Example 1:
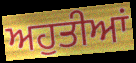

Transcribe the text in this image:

ਅਹੁਤੀਆਂ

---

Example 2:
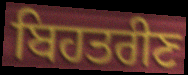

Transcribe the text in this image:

ਬਿਹਤਰੀਣ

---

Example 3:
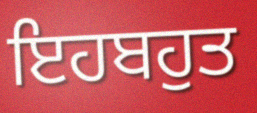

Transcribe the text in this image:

ਇਹਬਹੁਤ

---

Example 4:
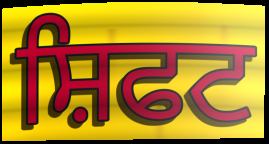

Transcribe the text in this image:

ਸ਼ਿਫਟ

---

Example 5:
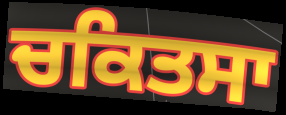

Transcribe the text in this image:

ਚਕਿਤਸਾ